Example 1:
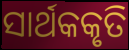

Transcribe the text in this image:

ସାର୍ଥକକୃତି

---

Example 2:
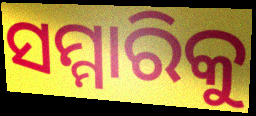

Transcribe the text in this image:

ସମ୍ମାରିକୁ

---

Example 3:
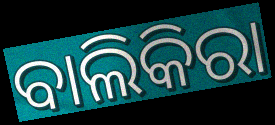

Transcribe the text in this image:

ବାଲିକିରା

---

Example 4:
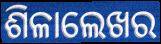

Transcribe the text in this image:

ଶିଳାଲେଖର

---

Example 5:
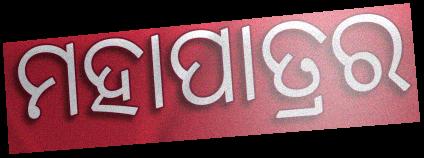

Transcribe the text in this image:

ମହାପାତ୍ରର